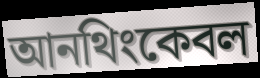
আনথিংকেবল